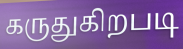
கருதுகிறபடி